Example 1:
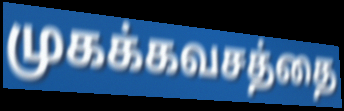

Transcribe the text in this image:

முகக்கவசத்தை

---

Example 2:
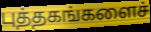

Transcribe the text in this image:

புத்தகங்களைச்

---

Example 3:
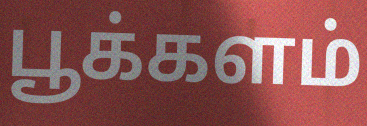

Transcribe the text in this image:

பூக்களம்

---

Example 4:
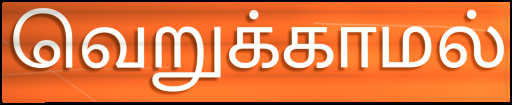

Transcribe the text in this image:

வெறுக்காமல்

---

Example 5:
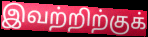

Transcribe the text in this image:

இவற்றிற்குக்